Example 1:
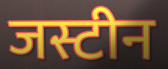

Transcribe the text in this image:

जस्टीन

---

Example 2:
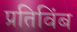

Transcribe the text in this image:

प्रतिविंब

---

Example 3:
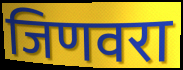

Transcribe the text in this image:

जिणवरा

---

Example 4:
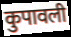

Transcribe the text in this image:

कुपावली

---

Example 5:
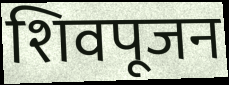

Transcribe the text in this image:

शिवपूजन